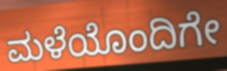
ಮಳೆಯೊಂದಿಗೇ